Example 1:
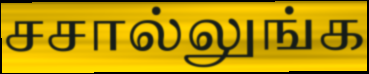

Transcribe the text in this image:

சசால்லுங்க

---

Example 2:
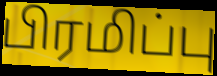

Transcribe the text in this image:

பிரமிப்பு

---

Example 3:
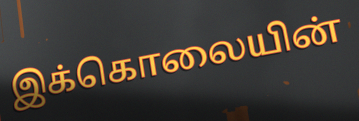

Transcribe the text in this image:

இக்கொலையின்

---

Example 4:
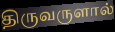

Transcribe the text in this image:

திருவருளால்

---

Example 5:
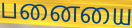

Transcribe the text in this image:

பனையை